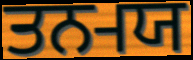
ਤਨ੍ਮਯ